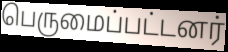
பெருமைப்பட்டனர்